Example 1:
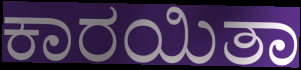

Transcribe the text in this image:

ಕಾರಯಿತಾ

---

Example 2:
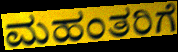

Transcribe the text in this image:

ಮಹಂತರಿಗೆ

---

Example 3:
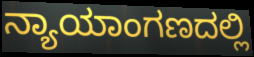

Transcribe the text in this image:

ನ್ಯಾಯಾಂಗಣದಲ್ಲಿ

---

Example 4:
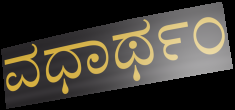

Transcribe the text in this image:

ವಧಾರ್ಥಂ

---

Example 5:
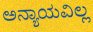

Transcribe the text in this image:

ಅನ್ಯಾಯವಿಲ್ಲ